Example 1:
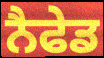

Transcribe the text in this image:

ਨੈਫੇਡ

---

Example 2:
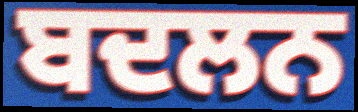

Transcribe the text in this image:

ਬਦਲਨ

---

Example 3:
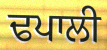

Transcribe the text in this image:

ਢਪਾਲੀ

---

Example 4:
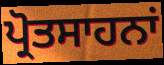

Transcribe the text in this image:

ਪ੍ਰੋਤਸਾਹਨਾਂ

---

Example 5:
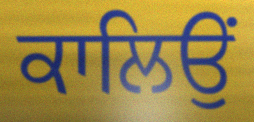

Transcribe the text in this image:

ਕਾਲਿਉਂ